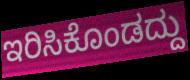
ಇರಿಸಿಕೊಂಡದ್ದು